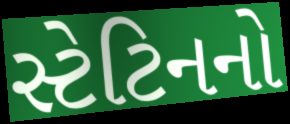
સ્ટેટિનનો